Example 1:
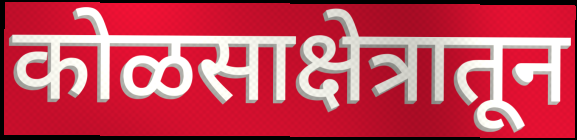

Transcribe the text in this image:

कोळसाक्षेत्रातून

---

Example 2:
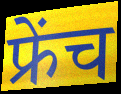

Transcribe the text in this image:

फ्रेंच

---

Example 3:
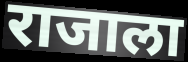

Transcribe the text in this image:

राजाला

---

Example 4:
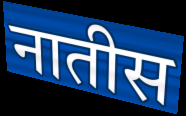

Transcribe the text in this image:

नातीस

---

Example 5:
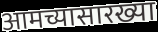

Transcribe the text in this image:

आमच्यासारख्या